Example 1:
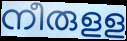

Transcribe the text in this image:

നീരുളള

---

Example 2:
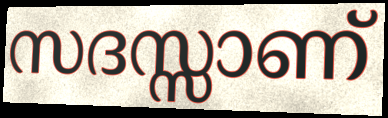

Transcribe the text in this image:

സദസ്സാണ്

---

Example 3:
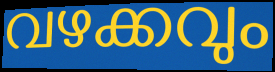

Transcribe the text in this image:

വഴക്കവും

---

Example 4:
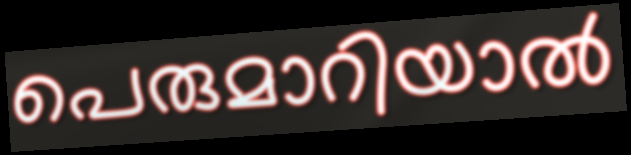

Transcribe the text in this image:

പെരുമാറിയാൽ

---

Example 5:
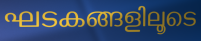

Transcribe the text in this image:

ഘടകങ്ങളിലൂടെ